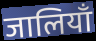
जालियाँ